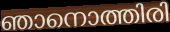
ഞാനൊത്തിരി